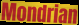
Mondrian